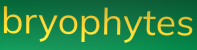
bryophytes